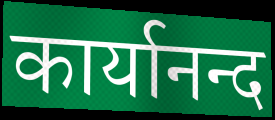
कार्यानन्द